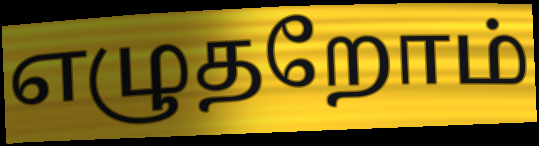
எழுதறோம்